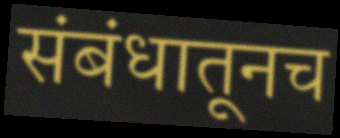
संबंधातूनच